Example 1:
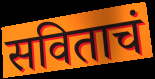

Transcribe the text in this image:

सविताचं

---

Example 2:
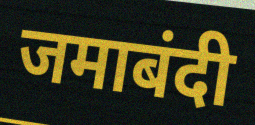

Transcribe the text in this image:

जमाबंदी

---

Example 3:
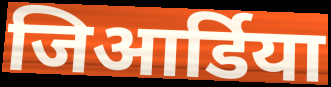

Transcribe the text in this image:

जिआर्डिया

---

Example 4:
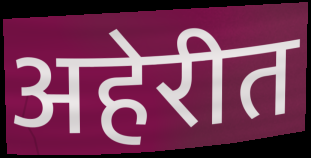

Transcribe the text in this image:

अहेरीत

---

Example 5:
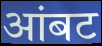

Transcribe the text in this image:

आंबट